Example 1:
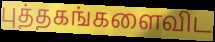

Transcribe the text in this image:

புத்தகங்களைவிட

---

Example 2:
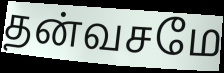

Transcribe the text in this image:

தன்வசமே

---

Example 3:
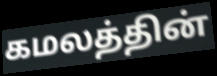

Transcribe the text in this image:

கமலத்தின்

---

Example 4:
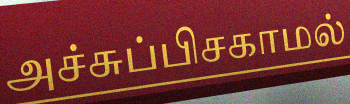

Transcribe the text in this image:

அச்சுப்பிசகாமல்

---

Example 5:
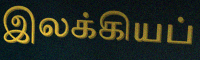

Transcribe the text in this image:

இலக்கியப்